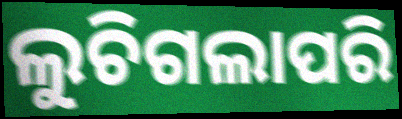
ଲୁଚିଗଲାପରି